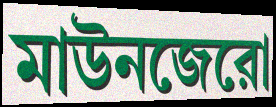
মাউনজেরো